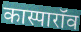
कास्पारॉव